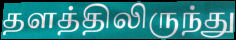
தளத்திலிருந்து